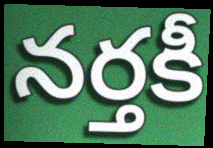
నర్తకీ